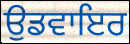
ਉਡਵਾਇਰ